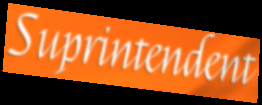
Suprintendent